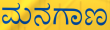
ಮನಗಾಣ